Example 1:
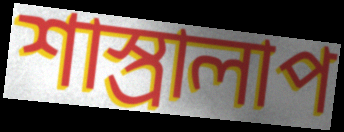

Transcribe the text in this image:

শাস্ত্রালাপ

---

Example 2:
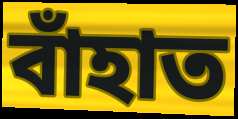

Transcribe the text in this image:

বাঁহাত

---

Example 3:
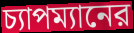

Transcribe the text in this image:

চ্যাপম্যানের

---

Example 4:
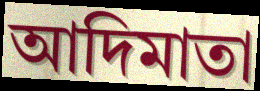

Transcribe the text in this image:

আদিমাতা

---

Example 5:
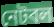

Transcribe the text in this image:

নেটবল